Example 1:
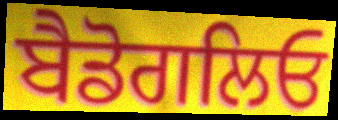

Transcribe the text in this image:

ਬੈਡੋਗਲਿਓ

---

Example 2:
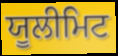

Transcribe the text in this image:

ਯੂਲੀਮਿਟ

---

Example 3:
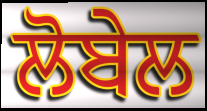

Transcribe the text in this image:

ਲੋਬੇਲ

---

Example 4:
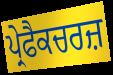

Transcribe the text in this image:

ਪ੍ਰੇਫੈਕਚਰਜ਼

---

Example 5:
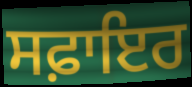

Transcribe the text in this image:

ਸਫ਼ਾਇਰ